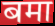
बमा